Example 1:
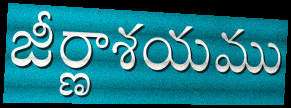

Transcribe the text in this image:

జీర్ణాశయము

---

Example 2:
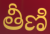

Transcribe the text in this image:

తీణి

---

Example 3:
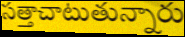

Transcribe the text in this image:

సత్తాచాటుతున్నారు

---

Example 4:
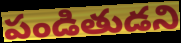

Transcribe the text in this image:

పండితుడని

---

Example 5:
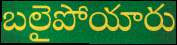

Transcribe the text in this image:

బలైపోయారు